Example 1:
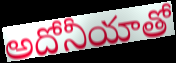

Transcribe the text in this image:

అదోనీయాతో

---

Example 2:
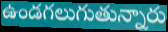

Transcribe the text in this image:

ఉండగలుగుతున్నారు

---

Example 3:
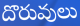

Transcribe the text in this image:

దొరువులు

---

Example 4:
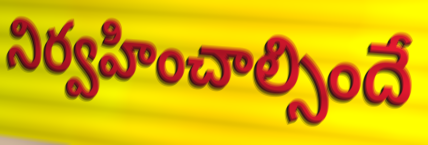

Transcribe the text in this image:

నిర్వహించాల్సిందే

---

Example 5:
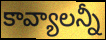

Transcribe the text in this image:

కావ్యాలన్నీ